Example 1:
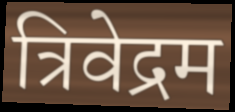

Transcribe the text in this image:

त्रिवेद्रम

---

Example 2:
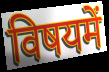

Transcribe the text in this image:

विषयमें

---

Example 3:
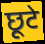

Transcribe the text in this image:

छूटे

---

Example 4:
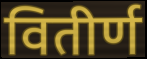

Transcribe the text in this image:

वितीर्ण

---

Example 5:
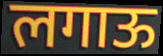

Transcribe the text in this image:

लगाऊ